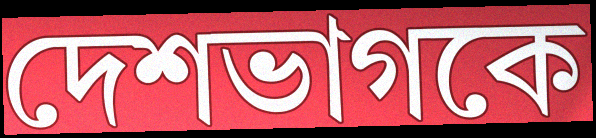
দেশভাগকে